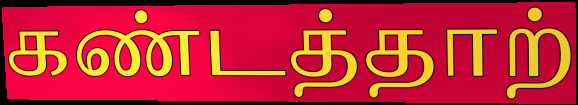
கண்டத்தாற்